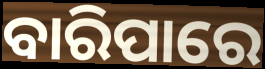
ବାରିପାରେ